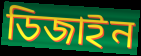
ডিজাইন